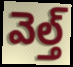
వెల్త్